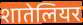
शातेलियर